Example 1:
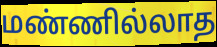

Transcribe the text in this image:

மண்ணில்லாத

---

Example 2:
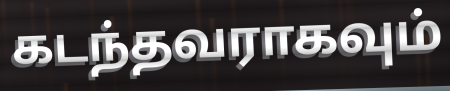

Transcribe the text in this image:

கடந்தவராகவும்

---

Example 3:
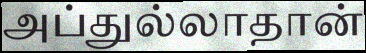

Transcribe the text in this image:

அப்துல்லாதான்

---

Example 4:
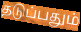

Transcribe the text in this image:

தடுப்பதும்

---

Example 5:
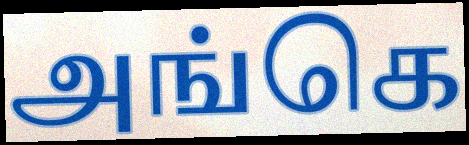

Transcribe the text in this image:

அங்கெ